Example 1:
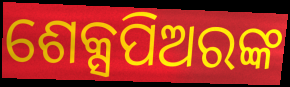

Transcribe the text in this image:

ଶେକ୍ସପିଅରଙ୍କ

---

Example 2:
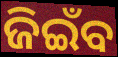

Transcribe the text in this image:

ଜିଇଁବ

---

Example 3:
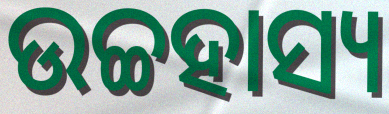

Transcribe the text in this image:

ଉଚ୍ଚହାସ୍ୟ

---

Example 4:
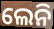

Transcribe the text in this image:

ଲେନି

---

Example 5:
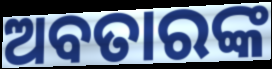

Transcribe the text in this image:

ଅବତାରଙ୍କ